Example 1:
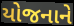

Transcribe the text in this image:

યોજનાને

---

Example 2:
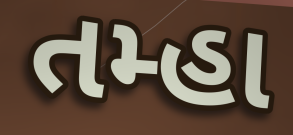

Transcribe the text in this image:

તમ્હા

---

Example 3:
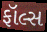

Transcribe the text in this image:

ફૉલ્સ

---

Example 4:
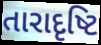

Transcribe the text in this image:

તારાદૃષ્ટિ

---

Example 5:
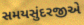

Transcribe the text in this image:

સમયસુંદરજીએ